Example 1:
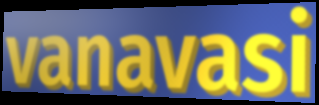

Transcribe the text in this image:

vanavasi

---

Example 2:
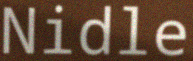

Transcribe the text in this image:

Nidle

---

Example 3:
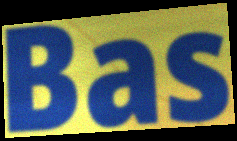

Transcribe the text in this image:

Bas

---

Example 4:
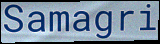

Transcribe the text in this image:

Samagri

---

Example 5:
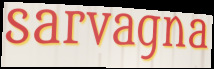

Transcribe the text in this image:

sarvagna